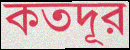
কতদূর